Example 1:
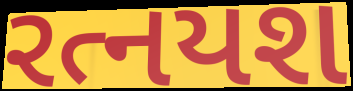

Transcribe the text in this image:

રત્નયશ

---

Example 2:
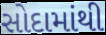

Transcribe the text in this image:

સોદામાંથી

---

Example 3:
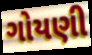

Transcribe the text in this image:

ગોયણી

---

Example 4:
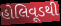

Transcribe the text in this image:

હોલિવૂડથી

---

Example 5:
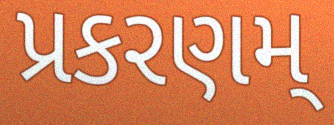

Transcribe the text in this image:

પ્રકરણમ્